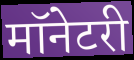
मॉनेटरी